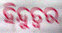
ହିନ୍ଦୁତ୍ବର